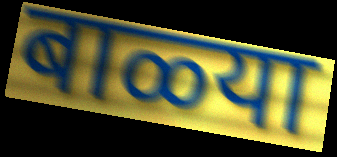
बाळ्या